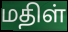
மதிள்